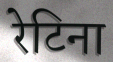
रेटिना